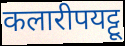
कलारीपयट्टू